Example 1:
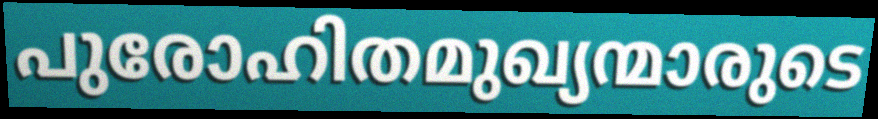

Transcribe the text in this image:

പുരോഹിതമുഖ്യന്മാരുടെ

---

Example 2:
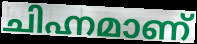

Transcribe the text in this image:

ചിഹ്നമാണ്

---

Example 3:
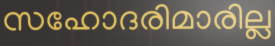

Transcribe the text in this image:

സഹോദരിമാരില്ല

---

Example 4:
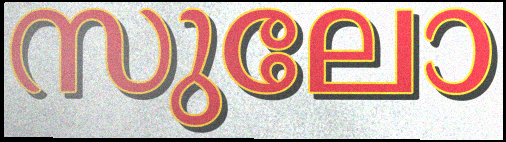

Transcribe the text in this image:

സുലോ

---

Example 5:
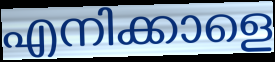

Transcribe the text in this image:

എനിക്കാളെ